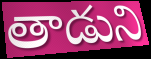
తాడుని